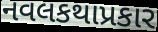
નવલકથાપ્રકાર